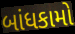
બાંધકામો